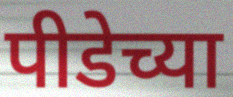
पीडेच्या